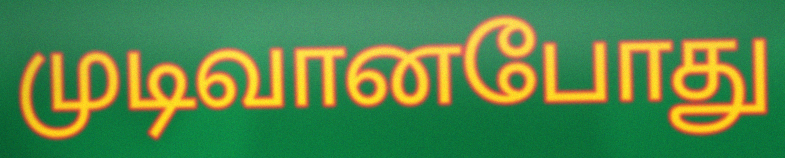
முடிவானபோது